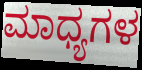
ಮಾಧ್ಯಗಳ